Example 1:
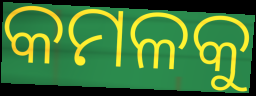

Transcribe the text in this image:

କମଳକୁ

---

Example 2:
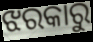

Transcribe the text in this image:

ଝରକାରୁ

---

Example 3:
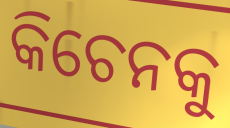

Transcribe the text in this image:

କିଚେନକୁ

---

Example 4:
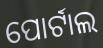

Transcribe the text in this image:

ପୋର୍ଟାଲ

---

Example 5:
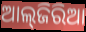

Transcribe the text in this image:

ଆଲ୍‌ଜିରିଆ